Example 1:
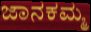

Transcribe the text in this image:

ಜಾನಕಮ್ಮ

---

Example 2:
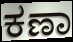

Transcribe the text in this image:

ಕಣಾ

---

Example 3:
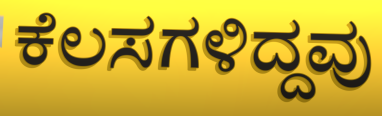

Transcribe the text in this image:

ಕೆಲಸಗಳಿದ್ದವು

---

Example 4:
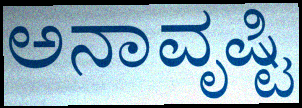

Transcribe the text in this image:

ಅನಾವೃಷ್ಟಿ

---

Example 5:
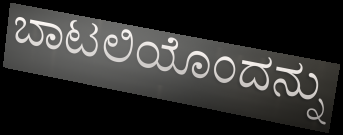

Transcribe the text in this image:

ಬಾಟಲಿಯೊಂದನ್ನು